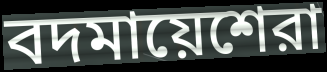
বদমায়েশেরা